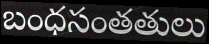
బంధసంతతులు